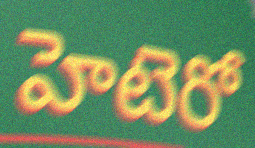
హెటెరో